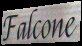
Falcone